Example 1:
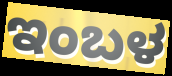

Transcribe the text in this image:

ಇಂಬಳ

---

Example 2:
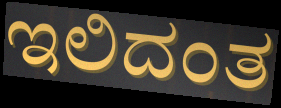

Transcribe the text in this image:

ಇಲಿದಂತ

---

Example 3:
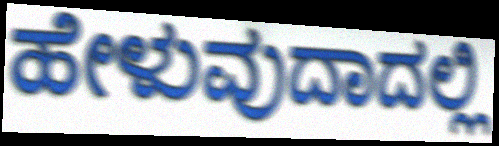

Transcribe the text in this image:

ಹೇಳುವುದಾದಲ್ಲಿ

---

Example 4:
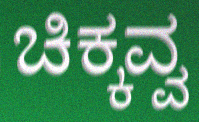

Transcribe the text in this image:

ಚಿಕ್ಕವ್ವ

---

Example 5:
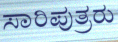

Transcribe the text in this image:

ಸಾರಿಪುತ್ರರು